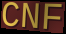
CNF